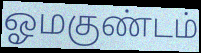
ஓமகுண்டம்